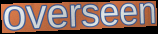
overseen